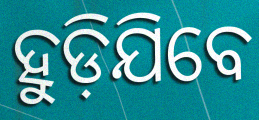
ହୁଡ଼ିଯିବେ